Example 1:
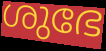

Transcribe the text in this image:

ശുഭേ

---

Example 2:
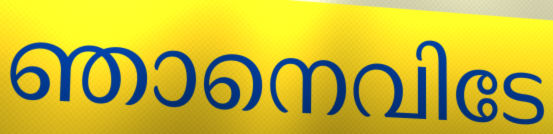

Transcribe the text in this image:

ഞാനെവിടേ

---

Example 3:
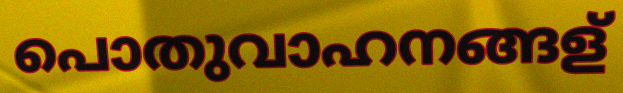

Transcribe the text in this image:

പൊതുവാഹനങ്ങള്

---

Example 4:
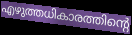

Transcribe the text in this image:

എഴുത്തധികാരത്തിന്റെ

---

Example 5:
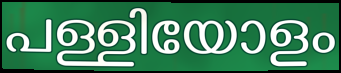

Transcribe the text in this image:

പള്ളിയോളം